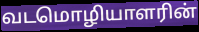
வடமொழியாளரின்